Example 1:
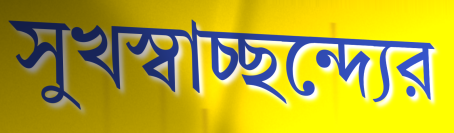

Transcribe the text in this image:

সুখস্বাচ্ছন্দ্যের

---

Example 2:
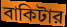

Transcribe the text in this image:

বাকিটার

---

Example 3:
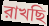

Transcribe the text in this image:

রাখছি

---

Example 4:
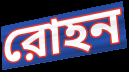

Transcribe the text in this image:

রোহন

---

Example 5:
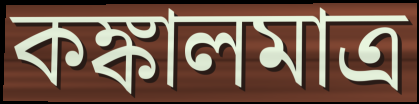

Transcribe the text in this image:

কঙ্কালমাত্র